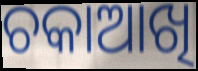
ଚକାଆଖି